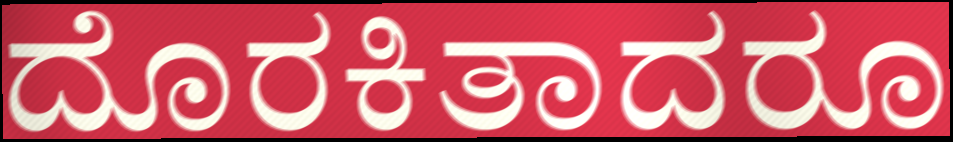
ದೊರಕಿತಾದರೂ